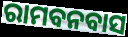
ରାମବନବାସ